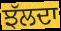
ਝੱਲਦਾ